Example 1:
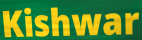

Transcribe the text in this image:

Kishwar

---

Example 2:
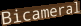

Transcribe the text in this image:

Bicameral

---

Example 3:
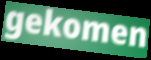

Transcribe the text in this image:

gekomen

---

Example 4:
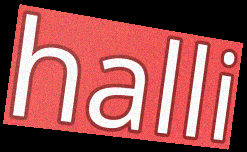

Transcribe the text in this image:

halli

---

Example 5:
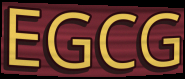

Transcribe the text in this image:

EGCG